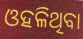
ଓହଳିଥିବା